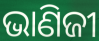
ଭାଣିଜୀ